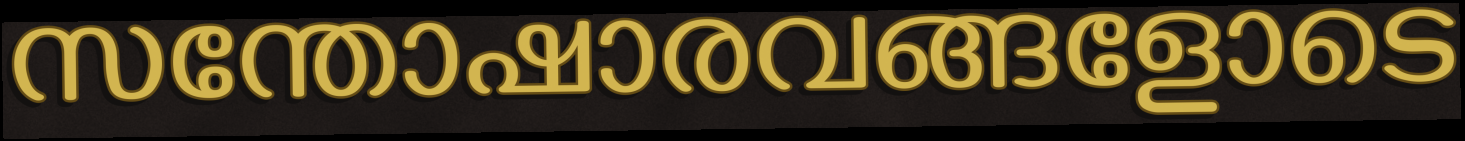
സന്തോഷാരവങ്ങളോടെ